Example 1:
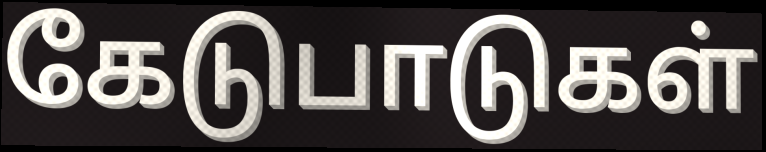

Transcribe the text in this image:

கேடுபாடுகள்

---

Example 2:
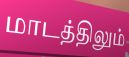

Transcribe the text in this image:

மாடத்திலும்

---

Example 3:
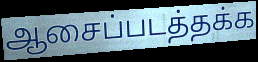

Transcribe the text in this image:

ஆசைப்படத்தக்க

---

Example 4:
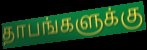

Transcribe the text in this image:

தாபங்களுக்கு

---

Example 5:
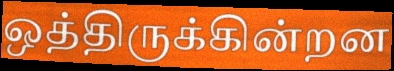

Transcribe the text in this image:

ஒத்திருக்கின்றன